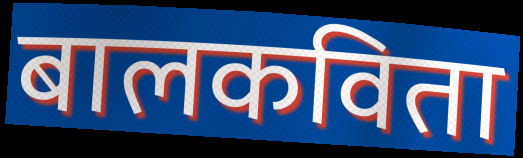
बालकविता